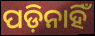
ପଡ଼ିନାହିଁ